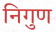
निगुण